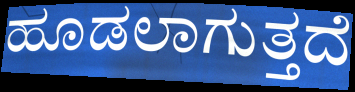
ಹೂಡಲಾಗುತ್ತದೆ